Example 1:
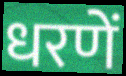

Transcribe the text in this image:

धरणें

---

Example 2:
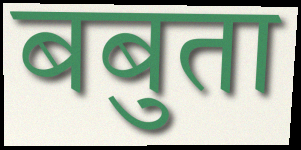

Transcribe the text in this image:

बबुता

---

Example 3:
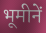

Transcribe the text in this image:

भूमीनें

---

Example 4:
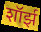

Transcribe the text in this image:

शॉर्झ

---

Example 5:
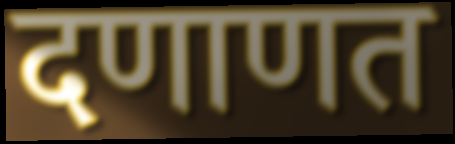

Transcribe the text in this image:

दणाणत